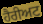
ਹੈਰੀਅਟ